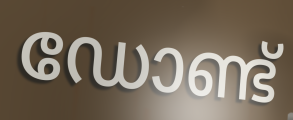
ഡോണ്ട്